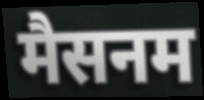
मैसनम